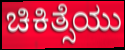
ಚಿಕಿತ್ಸೆಯು